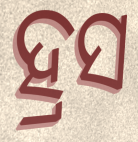
ହ୍ରସ